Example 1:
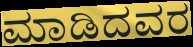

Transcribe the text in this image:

ಮಾಡಿದವರ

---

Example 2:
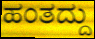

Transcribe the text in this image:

ಹಂತದ್ದು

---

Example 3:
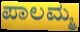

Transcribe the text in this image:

ಪಾಲಮ್ಮ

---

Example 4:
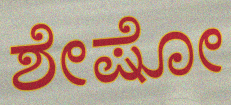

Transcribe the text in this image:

ಶೇಷೋ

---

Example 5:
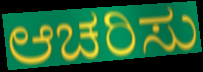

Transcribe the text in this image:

ಆಚರಿಸು